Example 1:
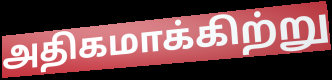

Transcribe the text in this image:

அதிகமாக்கிற்று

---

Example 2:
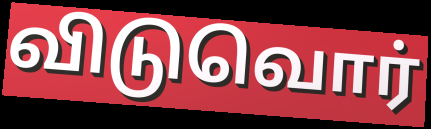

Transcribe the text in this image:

விடுவொர்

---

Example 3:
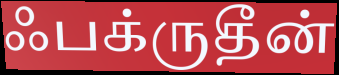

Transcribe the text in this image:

ஃபக்ருதீன்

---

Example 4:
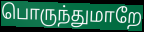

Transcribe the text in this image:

பொருந்துமாறே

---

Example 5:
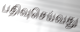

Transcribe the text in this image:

பதிவுசெய்வது